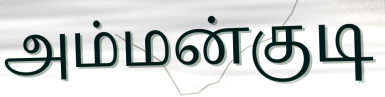
அம்மன்குடி